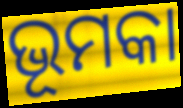
ଭୂମକା